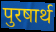
पुरषार्थ